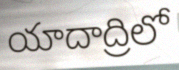
యాదాద్రిలో